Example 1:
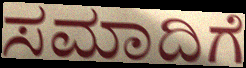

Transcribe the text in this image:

ಸಮಾದಿಗೆ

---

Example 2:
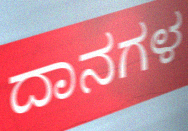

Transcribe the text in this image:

ದಾನಗಳ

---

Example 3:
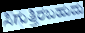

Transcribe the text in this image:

ಸಿಗುತ್ತಿರಬಹುದು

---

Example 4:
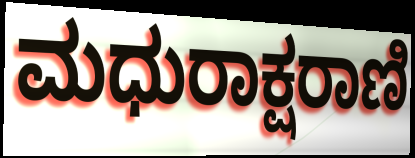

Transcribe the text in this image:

ಮಧುರಾಕ್ಷರಾಣಿ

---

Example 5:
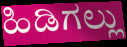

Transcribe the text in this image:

ಹಿಡಿಗಲ್ಲು